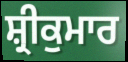
ਸ਼੍ਰੀਕੁਮਾਰ